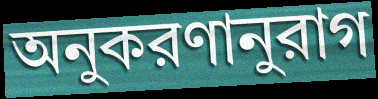
অনুকরণানুরাগ